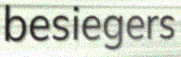
besiegers